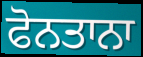
ਫੋਨਤਾਨਾ